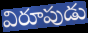
విరూపుడు